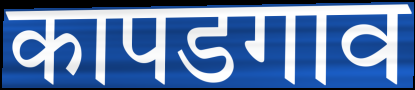
कापडगाव